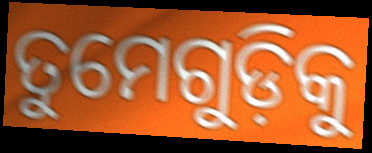
ତୁମେଗୁଡ଼ିକୁ